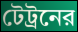
টেট্রনের